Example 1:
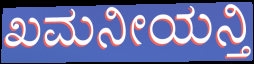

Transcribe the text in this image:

ಖಮನೀಯನ್ತಿ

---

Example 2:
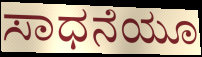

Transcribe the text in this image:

ಸಾಧನೆಯೂ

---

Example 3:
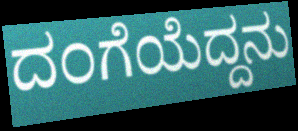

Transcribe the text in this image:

ದಂಗೆಯೆದ್ದನು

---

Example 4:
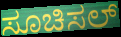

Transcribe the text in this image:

ಸೂಚಿಸಲ್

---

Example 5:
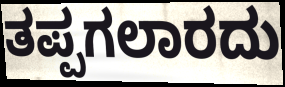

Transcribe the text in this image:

ತಪ್ಪಗಲಾರದು